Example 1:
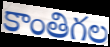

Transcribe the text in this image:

కాంతిగల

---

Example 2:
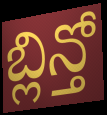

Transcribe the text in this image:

బ్లిన్తో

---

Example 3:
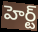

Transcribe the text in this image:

హెర్ట్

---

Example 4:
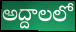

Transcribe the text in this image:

అద్దాలలో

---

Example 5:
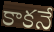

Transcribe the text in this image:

కాకనే